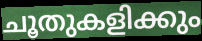
ചൂതുകളിക്കും